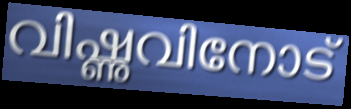
വിഷ്ണുവിനോട്